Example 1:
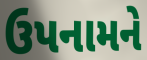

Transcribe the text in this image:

ઉપનામને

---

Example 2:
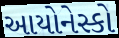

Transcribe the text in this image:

આયોનેસ્કો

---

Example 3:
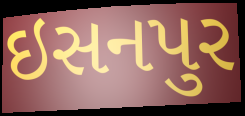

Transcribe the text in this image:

ઇસનપુર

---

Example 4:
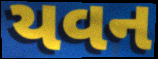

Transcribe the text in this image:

યવન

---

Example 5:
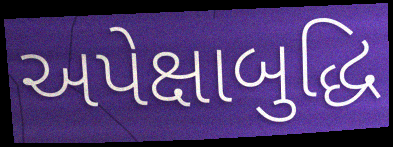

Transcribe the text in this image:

અપેક્ષાબુદ્ધિ